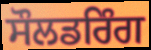
ਸੌਲਡਰਿੰਗ